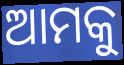
ଆମକୁ